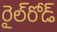
రైల్‌రోడ్